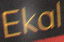
Ekal